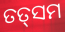
ତତ୍‍ସମ